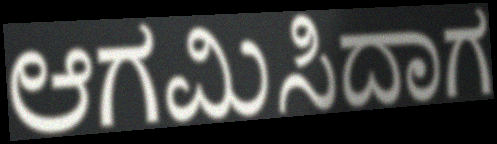
ಆಗಮಿಸಿದಾಗ